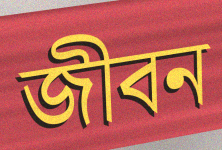
জীবন